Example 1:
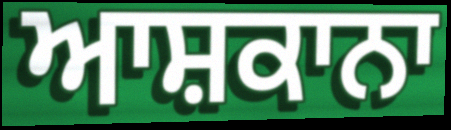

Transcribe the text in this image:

ਆਸ਼ਕਾਨਾ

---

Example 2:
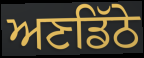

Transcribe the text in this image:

ਅਣਡਿੱਠੇ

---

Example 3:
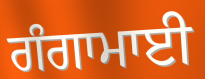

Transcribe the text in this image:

ਗੰਗਾਮਾਈ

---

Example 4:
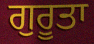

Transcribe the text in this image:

ਗੁਰੂਤਾ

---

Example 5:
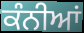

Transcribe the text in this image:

ਕੰਨੀਆਂ